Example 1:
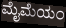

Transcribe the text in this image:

ಮೈಮೆಯಂ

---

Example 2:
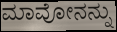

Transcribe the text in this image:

ಮಾವೋನನ್ನು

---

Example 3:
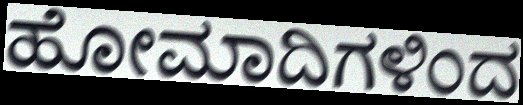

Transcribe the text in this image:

ಹೋಮಾದಿಗಳಿಂದ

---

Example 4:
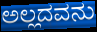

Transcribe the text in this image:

ಅಲ್ಲದವನು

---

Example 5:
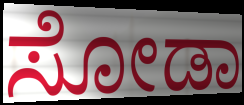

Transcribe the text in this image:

ಸೋಡಾ